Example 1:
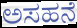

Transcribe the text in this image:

ಅಸಹನೆ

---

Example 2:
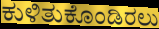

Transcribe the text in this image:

ಕುಳಿತುಕೊಂಡಿರಲು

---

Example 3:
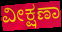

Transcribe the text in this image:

ವೀಕ್ಷಣಾ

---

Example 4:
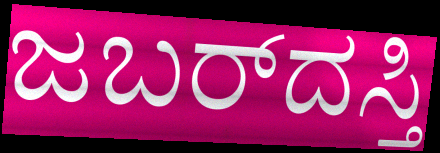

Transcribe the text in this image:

ಜಬರ್‌ದಸ್ತಿ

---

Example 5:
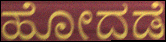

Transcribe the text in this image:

ಹೋದಡೆ